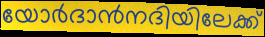
യോർദാൻനദിയിലേക്ക്